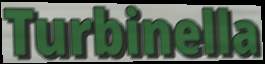
Turbinella